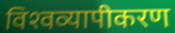
विश्वव्यापीकरण